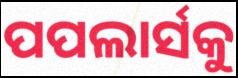
ପପଲାର୍ସକୁ